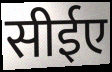
सीईए